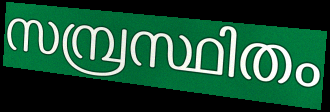
സമ്പ്രസ്ഥിതം